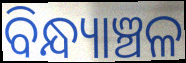
ବିନ୍ଧ୍ୟାଞ୍ଚଳ